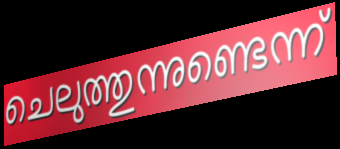
ചെലുത്തുന്നുണ്ടെന്ന്